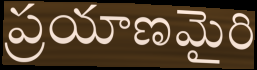
ప్రయాణమైరి